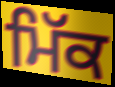
ਮਿੱਕ